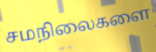
சமநிலைகளை